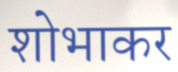
शोभाकर